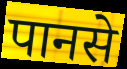
पानसे